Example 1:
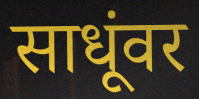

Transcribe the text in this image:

साधूंवर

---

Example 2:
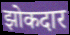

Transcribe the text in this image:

झोकदार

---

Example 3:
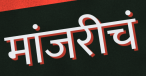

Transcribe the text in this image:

मांजरीचं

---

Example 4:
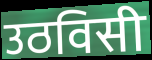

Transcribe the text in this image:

उठविसी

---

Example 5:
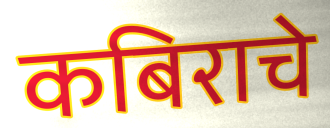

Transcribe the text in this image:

कबिराचे